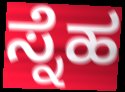
ಸ್ನೆಹ